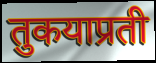
तुकयाप्रती